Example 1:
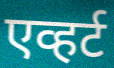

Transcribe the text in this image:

एव्हर्ट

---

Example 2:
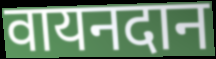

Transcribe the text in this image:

वायनदान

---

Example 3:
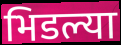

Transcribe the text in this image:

भिडल्या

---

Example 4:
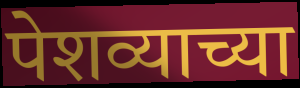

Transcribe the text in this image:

पेशव्याच्या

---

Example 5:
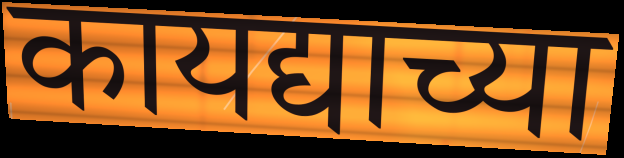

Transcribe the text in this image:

कायद्याच्या